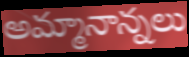
అమ్మానాన్నలు